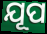
ଯୂପ